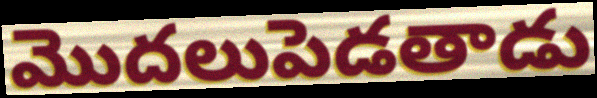
మొదలుపెడతాడు